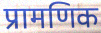
प्रामणिक